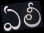
ఏలీ